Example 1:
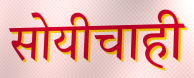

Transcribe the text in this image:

सोयीचाही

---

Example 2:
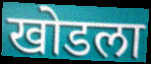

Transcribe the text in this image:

खोडला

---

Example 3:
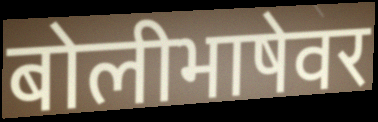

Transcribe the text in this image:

बोलीभाषेवर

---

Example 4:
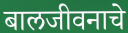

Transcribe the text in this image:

बालजीवनाचे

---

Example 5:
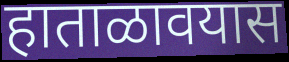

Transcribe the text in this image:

हाताळावयास